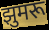
झुमरू